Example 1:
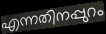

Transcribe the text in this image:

എന്നതിനപ്പുറം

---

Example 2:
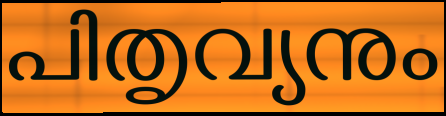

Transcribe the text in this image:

പിതൃവ്യനും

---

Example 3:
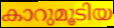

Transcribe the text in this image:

കാറുമൂടിയ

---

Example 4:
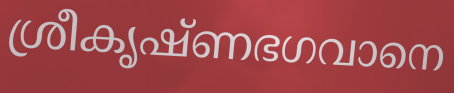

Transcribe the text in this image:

ശ്രീകൃഷ്ണഭഗവാനെ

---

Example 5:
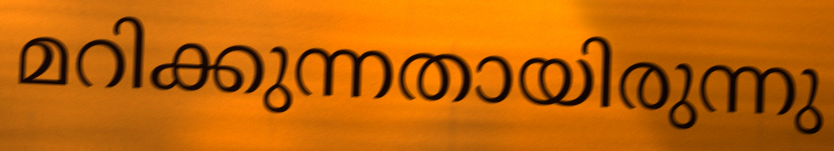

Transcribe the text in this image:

മറിക്കുന്നതായിരുന്നു